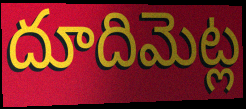
దూదిమెట్ల